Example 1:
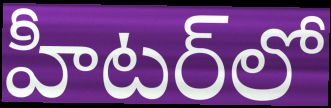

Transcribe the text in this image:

హీటర్‌లో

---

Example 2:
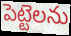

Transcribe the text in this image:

పెట్టెలను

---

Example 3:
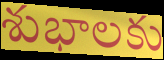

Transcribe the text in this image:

శుభాలకు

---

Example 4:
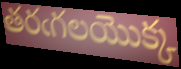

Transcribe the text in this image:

తరఁగలయొక్క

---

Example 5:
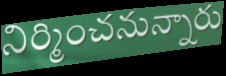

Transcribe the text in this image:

నిర్మించనున్నారు